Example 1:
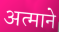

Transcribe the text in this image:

अत्माने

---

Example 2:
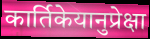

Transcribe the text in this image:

कार्तिकेयानुप्रेक्षा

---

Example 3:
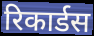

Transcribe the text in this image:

रिकार्डस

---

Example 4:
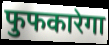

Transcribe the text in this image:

फुफकारेगा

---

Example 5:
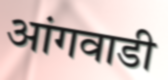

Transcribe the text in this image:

आंगवाडी